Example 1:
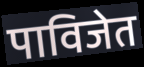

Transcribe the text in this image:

पाविजेत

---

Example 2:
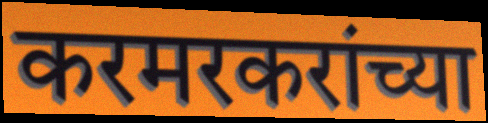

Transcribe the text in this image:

करमरकरांच्या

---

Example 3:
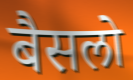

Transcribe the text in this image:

बैसलो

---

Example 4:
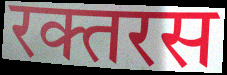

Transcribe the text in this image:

रक्तरस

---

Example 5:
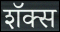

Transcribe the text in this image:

शॅक्स